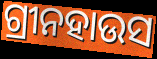
ଗ୍ରୀନହାଉସ